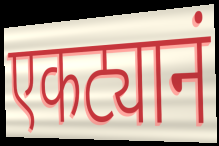
एकट्यानं